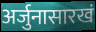
अर्जुनासारखं